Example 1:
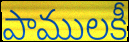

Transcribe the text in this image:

పాములకీ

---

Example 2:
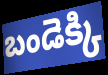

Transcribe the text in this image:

బండెక్కి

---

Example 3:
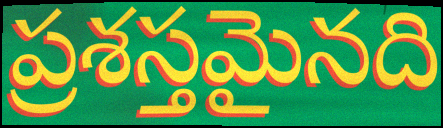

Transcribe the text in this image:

ప్రశస్తమైనది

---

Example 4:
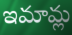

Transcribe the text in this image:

ఇమామ్ల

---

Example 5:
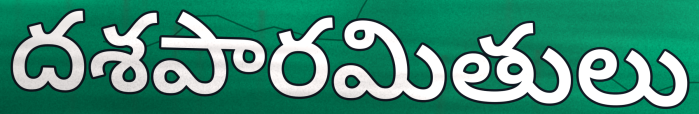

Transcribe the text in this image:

దశపారమితులు